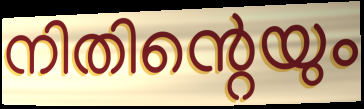
നിതിന്റെയും